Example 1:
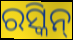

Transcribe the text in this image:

ରସ୍କିନ୍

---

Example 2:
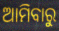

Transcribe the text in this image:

ଆମିବାରୁ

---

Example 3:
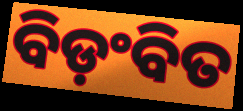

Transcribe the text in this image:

ବିଡ଼ଂବିତ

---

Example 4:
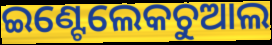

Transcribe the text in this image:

ଇଣ୍ଟେଲେକଚୁଆଲ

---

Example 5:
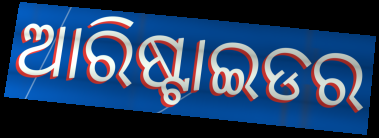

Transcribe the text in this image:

ଆରିଷ୍ଟାଇଡର